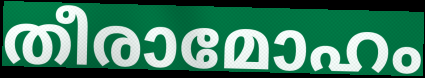
തീരാമോഹം